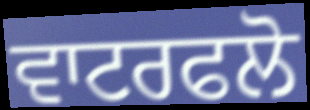
ਵਾਟਰਫਲੋ